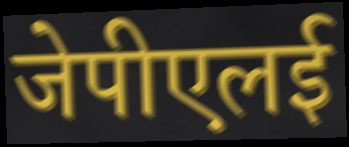
जेपीएलई